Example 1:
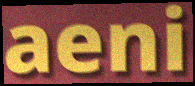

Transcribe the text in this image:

aeni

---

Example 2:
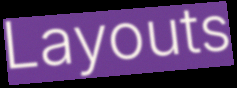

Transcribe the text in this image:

Layouts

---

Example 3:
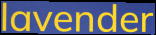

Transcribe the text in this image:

lavender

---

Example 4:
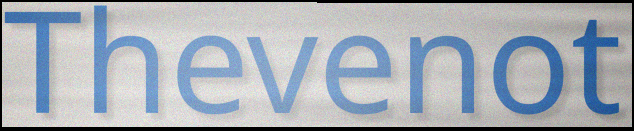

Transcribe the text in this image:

Thevenot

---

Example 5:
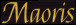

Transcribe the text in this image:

Maoris